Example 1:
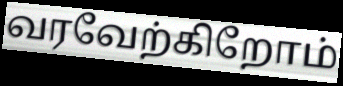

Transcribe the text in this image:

வரவேற்கிறோம்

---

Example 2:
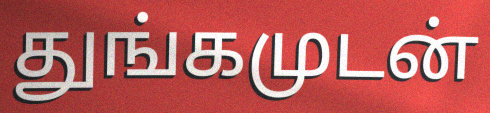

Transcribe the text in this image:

துங்கமுடன்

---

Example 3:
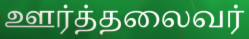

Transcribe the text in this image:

ஊர்த்தலைவர்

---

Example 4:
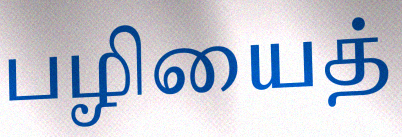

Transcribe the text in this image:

பழியைத்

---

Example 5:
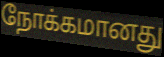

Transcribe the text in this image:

நோக்கமானது